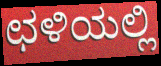
ಛಳಿಯಲ್ಲಿ